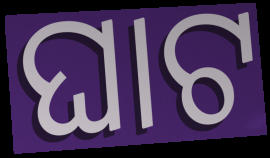
ଘାଟ